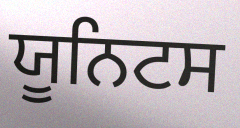
ਯੂਨਿਟਸ